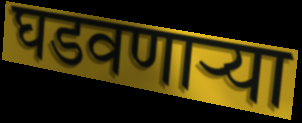
घडवणार्‍या